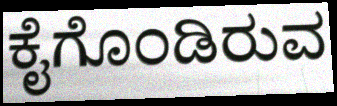
ಕೈಗೊಂಡಿರುವ